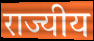
राज्‍यीय